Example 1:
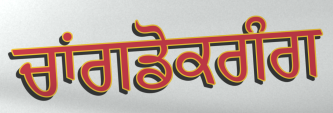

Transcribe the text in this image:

ਚਾਂਗਡੋਕਗੰਗ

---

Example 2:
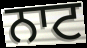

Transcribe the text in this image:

ਨਾਟ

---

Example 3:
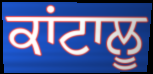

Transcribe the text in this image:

ਕਾਂਟਾਲੂ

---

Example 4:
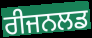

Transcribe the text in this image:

ਰੀਜਨਲਡ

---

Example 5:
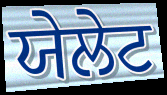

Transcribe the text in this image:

ਯੇਲੇਟ